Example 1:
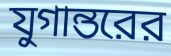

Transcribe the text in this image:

যুগান্তরের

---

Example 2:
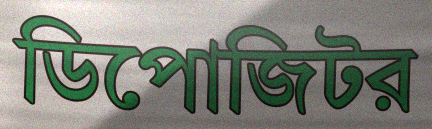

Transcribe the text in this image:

ডিপোজিটর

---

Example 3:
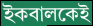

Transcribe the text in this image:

ইকবালকেই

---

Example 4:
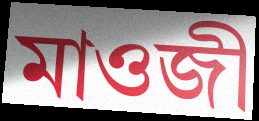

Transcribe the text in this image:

মাওজী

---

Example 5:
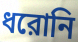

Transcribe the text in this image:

ধরোনি